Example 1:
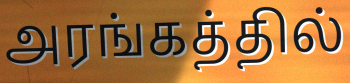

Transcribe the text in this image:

அரங்கத்தில்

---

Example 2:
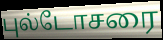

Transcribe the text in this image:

புல்டோசரை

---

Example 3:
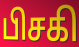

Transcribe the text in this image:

பிசகி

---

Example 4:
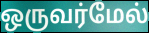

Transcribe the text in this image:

ஒருவர்மேல்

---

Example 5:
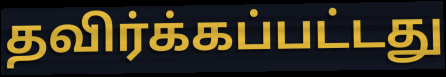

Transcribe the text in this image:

தவிர்க்கப்பட்டது